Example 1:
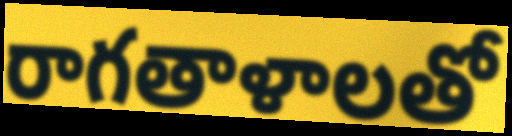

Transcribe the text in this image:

రాగతాళాలతో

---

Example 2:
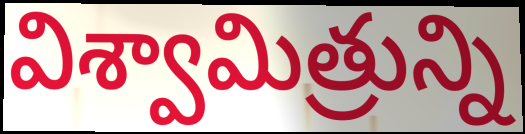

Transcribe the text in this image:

విశ్వామిత్రున్ని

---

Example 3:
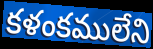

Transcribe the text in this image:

కళంకములేని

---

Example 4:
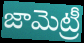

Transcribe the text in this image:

జామెట్రీ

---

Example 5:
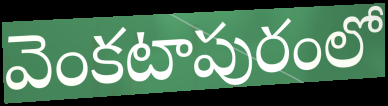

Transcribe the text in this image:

వెంకటాపురంలో